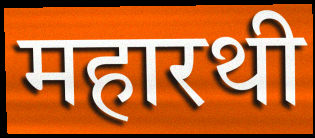
महारथी